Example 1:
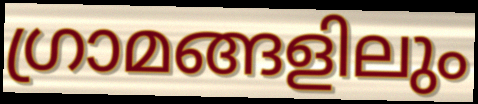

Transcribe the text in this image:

ഗ്രാമങ്ങളിലും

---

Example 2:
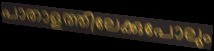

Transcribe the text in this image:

പാതാളത്തിലേക്കുപോലും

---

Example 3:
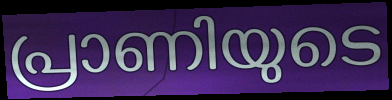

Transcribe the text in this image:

പ്രാണിയുടെ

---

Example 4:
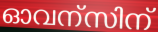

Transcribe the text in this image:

ഓവന്സിന്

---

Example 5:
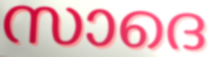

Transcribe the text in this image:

സാദെ